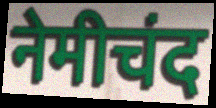
नेमीचंद